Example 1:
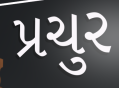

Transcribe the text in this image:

પ્રચુર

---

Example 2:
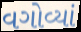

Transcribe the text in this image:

વગોવ્યાં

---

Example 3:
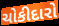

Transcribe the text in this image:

ચોકીદારો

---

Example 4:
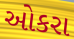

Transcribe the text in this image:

ઓકરા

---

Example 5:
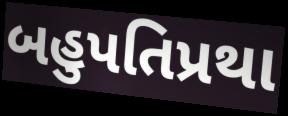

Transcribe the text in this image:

બહુપતિપ્રથા